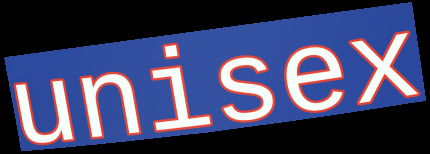
unisex